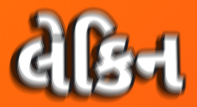
લેકિન